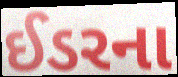
ઈડરના